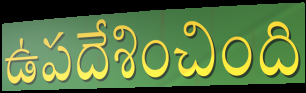
ఉపదేశించింది